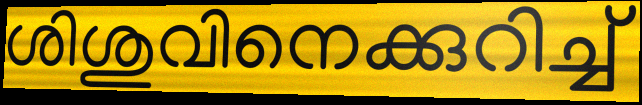
ശിശുവിനെക്കുറിച്ച്